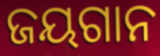
ଜୟଗାନ